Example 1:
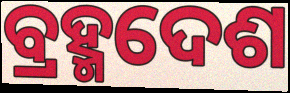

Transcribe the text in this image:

ବ୍ରହ୍ମଦେଶ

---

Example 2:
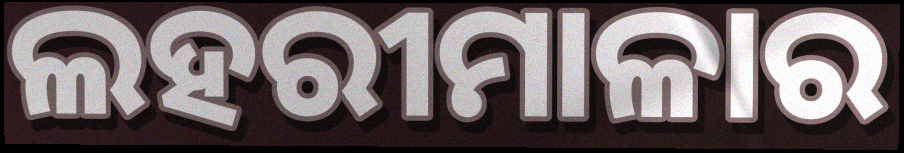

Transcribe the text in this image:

ଲହରୀମାଳାର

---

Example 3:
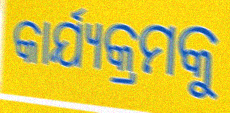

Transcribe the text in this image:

କାର୍ଯ୍ୟକ୍ରମକୁ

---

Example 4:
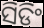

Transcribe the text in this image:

ସିଡିଂ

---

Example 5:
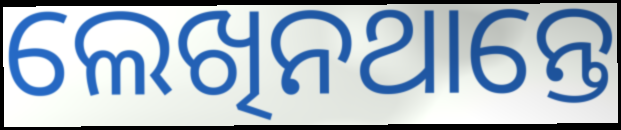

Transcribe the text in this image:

ଲେଖିନଥାନ୍ତେ